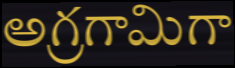
అగ్రగామిగా